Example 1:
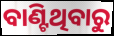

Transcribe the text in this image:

ବାଣ୍ଟିଥିବାରୁ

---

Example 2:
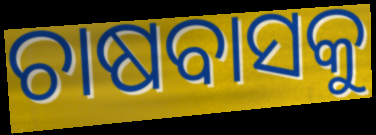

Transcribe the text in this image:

ଚାଷବାସକୁ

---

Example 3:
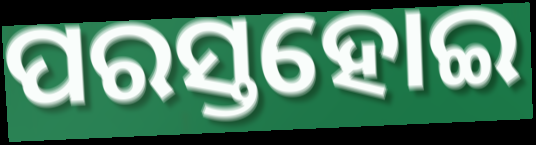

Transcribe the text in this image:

ପରସ୍ତହୋଇ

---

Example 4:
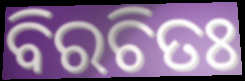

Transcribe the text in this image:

ବିରଚିତଃ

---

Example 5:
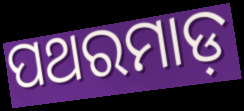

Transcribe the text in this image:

ପଥରମାଡ଼